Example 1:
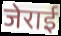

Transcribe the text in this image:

जेराई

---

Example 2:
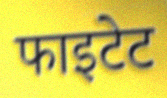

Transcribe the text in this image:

फाइटेट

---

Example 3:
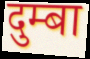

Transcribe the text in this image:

दुम्बा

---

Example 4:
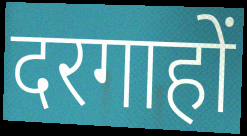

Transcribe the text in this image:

दरगाहों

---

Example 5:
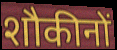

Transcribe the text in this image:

शौकीनों